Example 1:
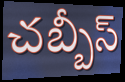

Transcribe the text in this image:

చబ్బీస్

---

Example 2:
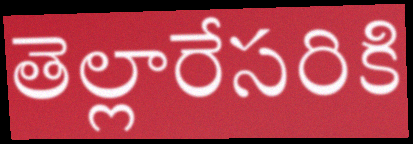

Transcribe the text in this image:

తెల్లారేసరికి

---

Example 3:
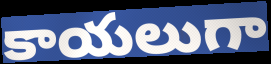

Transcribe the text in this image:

కాయలుగా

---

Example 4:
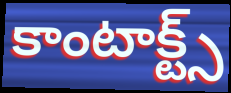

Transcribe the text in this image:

కాంటాక్ట్స్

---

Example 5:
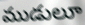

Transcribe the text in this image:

ముడులూ